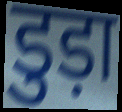
डुड़ा